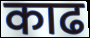
काढ